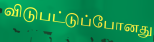
விடுபட்டுப்போனது